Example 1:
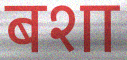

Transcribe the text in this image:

बशा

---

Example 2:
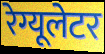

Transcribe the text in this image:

रेग्यूलेटर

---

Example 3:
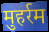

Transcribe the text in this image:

मुहर्रम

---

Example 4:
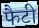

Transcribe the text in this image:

फैटी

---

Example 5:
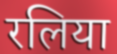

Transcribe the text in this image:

रलिया